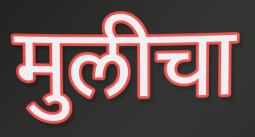
मुलीचा